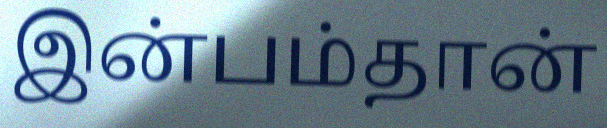
இன்பம்தான்